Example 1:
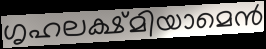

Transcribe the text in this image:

ഗൃഹലക്ഷ്മിയാമെൻ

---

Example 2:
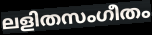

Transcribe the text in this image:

ലളിതസംഗീതം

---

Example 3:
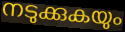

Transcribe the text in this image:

നടുക്കുകയും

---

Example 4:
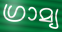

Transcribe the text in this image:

ഗ്രാമ്യ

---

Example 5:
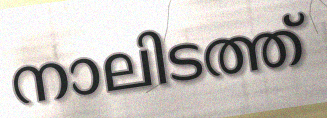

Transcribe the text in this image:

നാലിടത്ത്